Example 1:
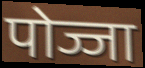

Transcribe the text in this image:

पोज्जा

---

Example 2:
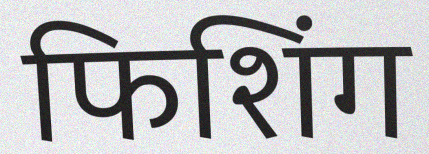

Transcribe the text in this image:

फिशिंग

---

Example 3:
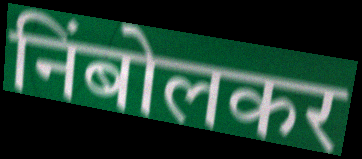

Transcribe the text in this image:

निंबोलकर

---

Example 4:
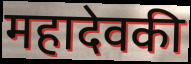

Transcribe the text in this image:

महादेवकी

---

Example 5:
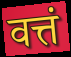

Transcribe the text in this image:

वत्तं